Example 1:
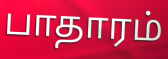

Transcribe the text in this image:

பாதாரம்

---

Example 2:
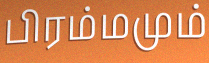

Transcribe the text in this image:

பிரம்மமும்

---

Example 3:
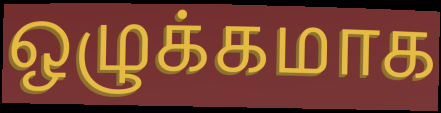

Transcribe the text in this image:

ஒழுக்கமாக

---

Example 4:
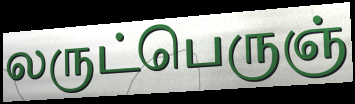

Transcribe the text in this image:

லருட்பெருஞ்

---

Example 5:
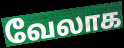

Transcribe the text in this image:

வேலாக